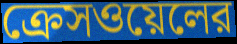
ক্রেসওয়েলের